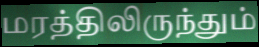
மரத்திலிருந்தும்